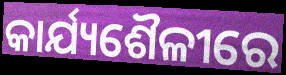
କାର୍ଯ୍ୟଶୈଳୀରେ